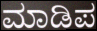
ಮಾಡಿಪ